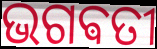
ଭଗଵତୀ